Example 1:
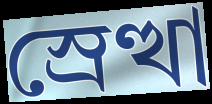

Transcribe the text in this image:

স্রেত্থা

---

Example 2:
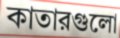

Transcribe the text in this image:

কাতারগুলো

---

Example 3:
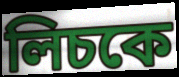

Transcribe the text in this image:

লিচকে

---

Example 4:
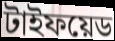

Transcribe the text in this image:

টাইফয়েড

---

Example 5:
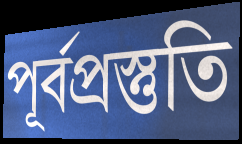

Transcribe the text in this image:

পূর্বপ্রস্তুতি